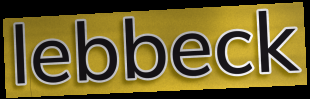
lebbeck